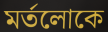
মর্তলোকে